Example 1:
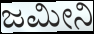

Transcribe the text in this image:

ಜಮೀನಿ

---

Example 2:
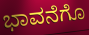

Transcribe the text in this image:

ಭಾವನೆಗೊ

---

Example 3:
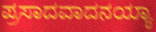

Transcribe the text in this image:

ಪ್ರಸಾದವಾದನಯ್ಯಾ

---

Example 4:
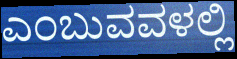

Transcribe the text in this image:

ಎಂಬುವವಳಲ್ಲಿ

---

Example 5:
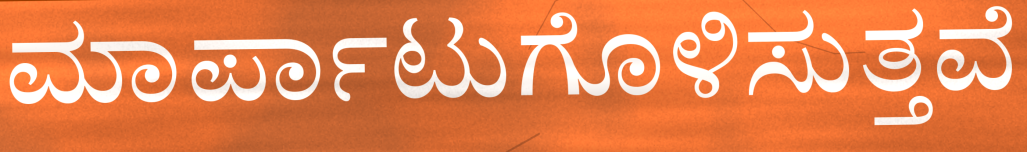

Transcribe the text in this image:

ಮಾರ್ಪಾಟುಗೊಳಿಸುತ್ತವೆ